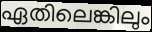
ഏതിലെങ്കിലും